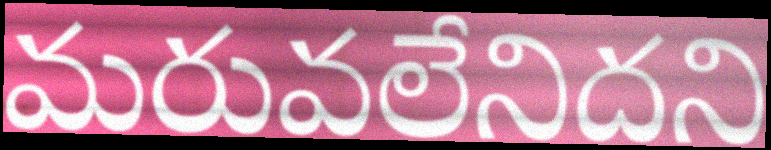
మరువలేనిదని